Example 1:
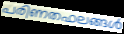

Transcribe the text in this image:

പരിണതഫലങ്ങൾ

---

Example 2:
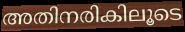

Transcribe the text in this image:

അതിനരികിലൂടെ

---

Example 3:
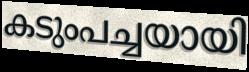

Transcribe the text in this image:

കടുംപച്ചയായി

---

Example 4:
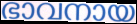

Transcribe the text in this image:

ഭാവനായ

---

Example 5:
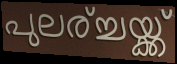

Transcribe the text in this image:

പുലര്ച്ചയ്ക്ക്